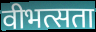
वीभत्सता